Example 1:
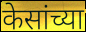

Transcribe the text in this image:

केसांच्या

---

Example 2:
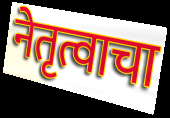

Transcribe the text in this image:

नेतृत्वाचा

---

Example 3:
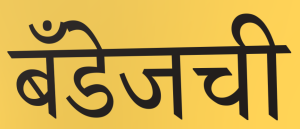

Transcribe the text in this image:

बँडेजची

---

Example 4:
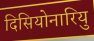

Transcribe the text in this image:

दिसियोनारियु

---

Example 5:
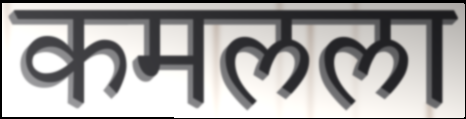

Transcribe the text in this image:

कमलला